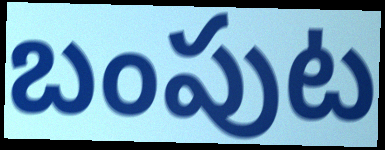
బంపుట